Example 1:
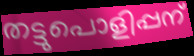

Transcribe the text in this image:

തട്ടുപൊളിപ്പന്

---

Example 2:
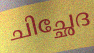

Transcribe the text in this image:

ചിച്ഛേദ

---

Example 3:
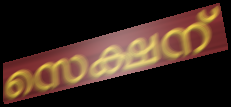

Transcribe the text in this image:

സെക്ഷന്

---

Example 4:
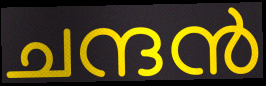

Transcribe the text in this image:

ചന്ദൻ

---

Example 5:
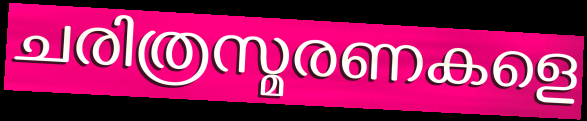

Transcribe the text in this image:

ചരിത്രസ്മരണകളെ